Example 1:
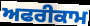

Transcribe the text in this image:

ਅਫਰੀਕਾਮ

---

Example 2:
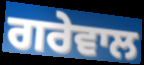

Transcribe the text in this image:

ਗਰੇਵਾਲ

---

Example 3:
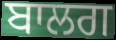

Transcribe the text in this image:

ਬਾਲਗ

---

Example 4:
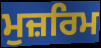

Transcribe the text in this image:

ਮੁਜ਼ਰਿਮ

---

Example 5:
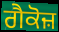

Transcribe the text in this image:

ਗੈਕੋਜ਼